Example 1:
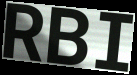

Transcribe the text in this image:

RBI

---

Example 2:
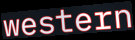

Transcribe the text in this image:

western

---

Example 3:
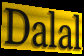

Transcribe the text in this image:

Dalal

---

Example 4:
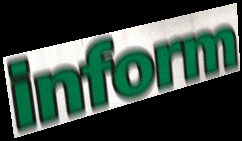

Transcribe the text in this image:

inform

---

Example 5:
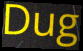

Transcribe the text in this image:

Dug